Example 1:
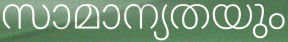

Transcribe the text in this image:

സാമാന്യതയും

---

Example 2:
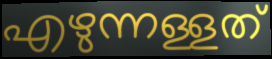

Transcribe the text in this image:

എഴുന്നള്ളത്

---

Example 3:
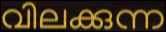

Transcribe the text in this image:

വിലക്കുന്ന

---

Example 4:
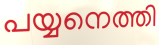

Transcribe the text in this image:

പയ്യനെത്തി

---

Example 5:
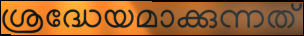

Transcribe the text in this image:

ശ്രദ്ധേയമാക്കുന്നത്